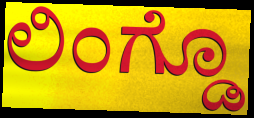
ಲಿಂಗ್ಡೊ